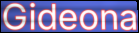
Gideona